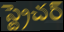
స్ట్రెచర్